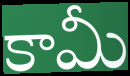
కామీ